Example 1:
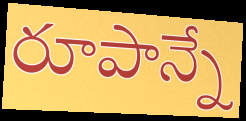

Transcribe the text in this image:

రూపాన్నే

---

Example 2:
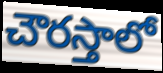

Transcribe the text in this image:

చౌరస్తాలో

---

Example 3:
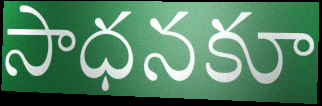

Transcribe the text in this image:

సాధనకూ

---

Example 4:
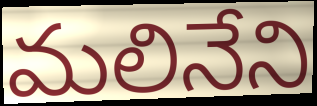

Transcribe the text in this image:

మలినేని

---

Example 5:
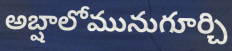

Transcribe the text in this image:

అబ్షాలోమునుగూర్చి